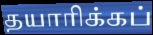
தயாரிக்கப்